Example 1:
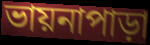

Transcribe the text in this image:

ভায়নাপাড়া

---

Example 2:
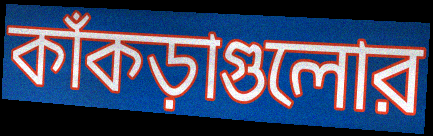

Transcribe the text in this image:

কাঁকড়াগুলোর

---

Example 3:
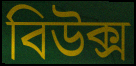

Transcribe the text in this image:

বিউক্স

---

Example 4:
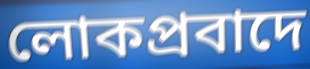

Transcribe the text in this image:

লোকপ্রবাদে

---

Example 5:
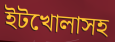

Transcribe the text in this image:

ইটখোলাসহ